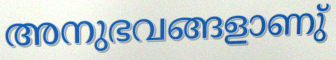
അനുഭവങ്ങളാണു്